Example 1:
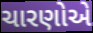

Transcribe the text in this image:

ચારણોએ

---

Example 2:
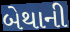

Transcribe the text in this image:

બેથાની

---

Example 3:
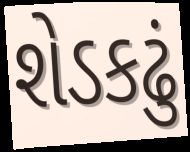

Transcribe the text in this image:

શેડકઢું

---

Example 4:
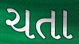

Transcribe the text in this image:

ચતા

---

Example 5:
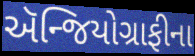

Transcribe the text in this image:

ઍન્જિયોગ્રાફીના